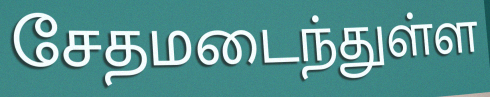
சேதமடைந்துள்ள